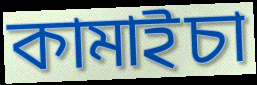
কামাইচা